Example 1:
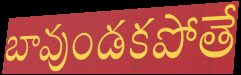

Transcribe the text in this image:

బావుండకపోతే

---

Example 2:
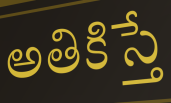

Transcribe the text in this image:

అతికిస్తే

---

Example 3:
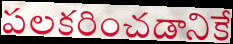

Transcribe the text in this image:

పలకరించడానికే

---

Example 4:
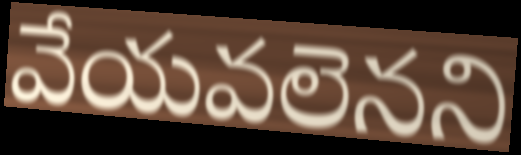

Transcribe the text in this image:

వేయవలెనని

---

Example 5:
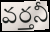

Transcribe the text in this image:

వర్తనీ